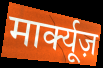
मार्क्यूज़